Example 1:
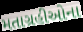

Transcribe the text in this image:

મતાગ્રહીઓના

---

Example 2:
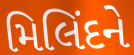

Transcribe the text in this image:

મિલિંદને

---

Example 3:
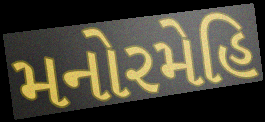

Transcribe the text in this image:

મનોરમેહિ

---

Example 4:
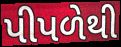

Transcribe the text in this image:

પીપળેથી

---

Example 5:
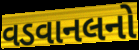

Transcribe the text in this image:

વડવાનલનો